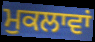
ਮੁਕਲਾਵਾਂ